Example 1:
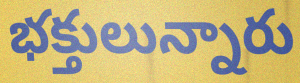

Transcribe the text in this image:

భక్తులున్నారు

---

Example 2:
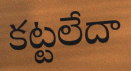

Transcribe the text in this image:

కట్టలేదా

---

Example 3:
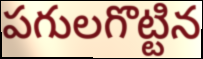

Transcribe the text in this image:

పగులగొట్టిన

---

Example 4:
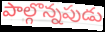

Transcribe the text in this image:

పాల్గొన్నపుడు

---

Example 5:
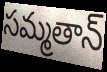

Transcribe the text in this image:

సమ్మతాన్